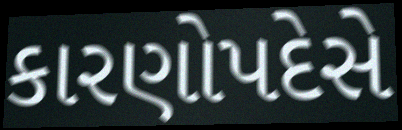
કારણોપદેસે